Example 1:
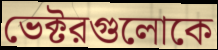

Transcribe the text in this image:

ভেক্টরগুলোকে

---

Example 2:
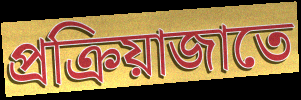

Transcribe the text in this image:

প্রক্রিয়াজাতে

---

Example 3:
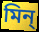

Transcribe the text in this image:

মিন্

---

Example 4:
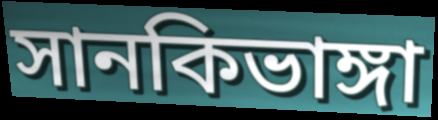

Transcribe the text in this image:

সানকিভাঙ্গা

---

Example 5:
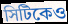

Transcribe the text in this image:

সিটিকেও